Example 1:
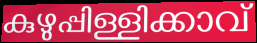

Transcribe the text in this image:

കുഴുപ്പിള്ളിക്കാവ്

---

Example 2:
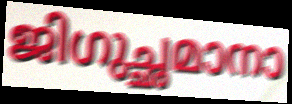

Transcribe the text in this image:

ജിഗുച്ഛമാനാ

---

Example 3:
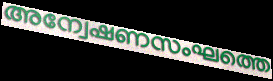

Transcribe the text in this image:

അന്വേഷണസംഘത്തെ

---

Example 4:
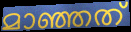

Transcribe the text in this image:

മാഞ്ഞത്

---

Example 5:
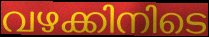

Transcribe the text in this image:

വഴക്കിനിടെ